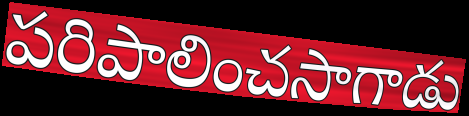
పరిపాలించసాగాడు